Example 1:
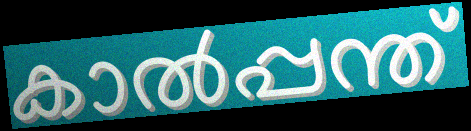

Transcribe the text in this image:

കാൽപ്പന്ത്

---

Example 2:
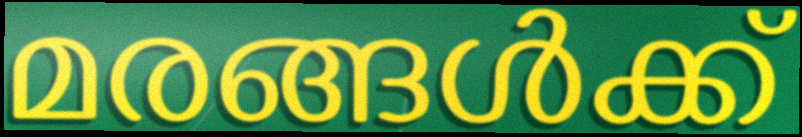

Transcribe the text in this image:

മരങ്ങൾക്ക്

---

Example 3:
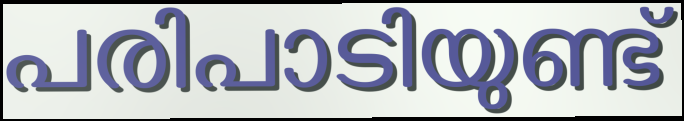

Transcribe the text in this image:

പരിപാടിയുണ്ട്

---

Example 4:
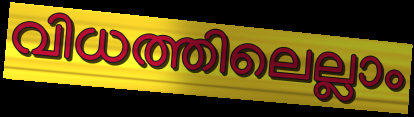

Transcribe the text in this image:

വിധത്തിലെല്ലാം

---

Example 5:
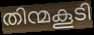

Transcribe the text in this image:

തിന്മകൂടി